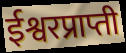
ईश्वरप्राप्ती